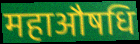
महाऔषधि